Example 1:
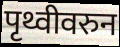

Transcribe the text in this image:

पृथ्वीवरुन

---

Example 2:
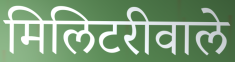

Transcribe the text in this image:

मिलिटरीवाले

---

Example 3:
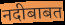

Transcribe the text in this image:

नदीबाबत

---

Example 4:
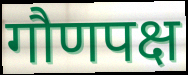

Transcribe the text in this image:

गौणपक्ष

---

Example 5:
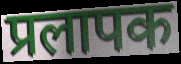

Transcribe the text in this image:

प्रलापक